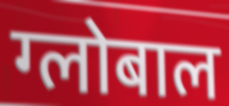
ग्लोबाल